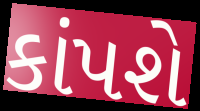
કાંપશે